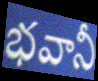
భవానీ